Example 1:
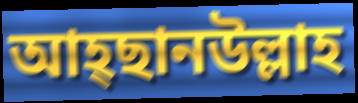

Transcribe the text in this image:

আহ্ছানউল্লাহ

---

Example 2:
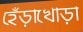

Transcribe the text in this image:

হেঁড়াখোড়া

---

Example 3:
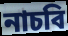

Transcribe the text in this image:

নাচবি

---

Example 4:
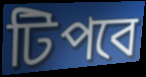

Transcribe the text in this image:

টিপবে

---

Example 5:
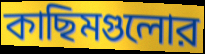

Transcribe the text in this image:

কাছিমগুলোর